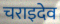
चराइदेव